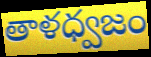
తాళధ్వజం